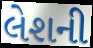
લેશની